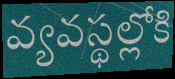
వ్యవస్థల్లోకి